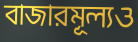
বাজারমূল্যও